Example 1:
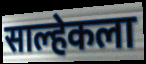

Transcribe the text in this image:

साल्हेकला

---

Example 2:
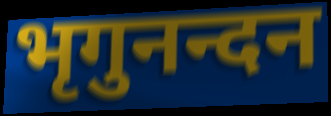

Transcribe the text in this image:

भृगुनन्दन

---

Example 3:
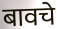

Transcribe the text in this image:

बावचे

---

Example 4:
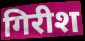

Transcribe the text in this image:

गिरीश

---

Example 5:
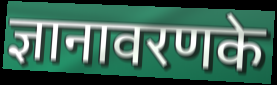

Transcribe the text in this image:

ज्ञानावरणके